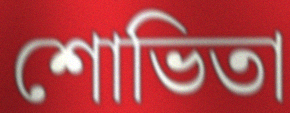
শোভিতা